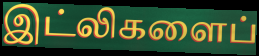
இட்லிகளைப்